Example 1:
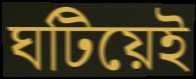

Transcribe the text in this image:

ঘটিয়েই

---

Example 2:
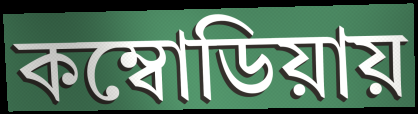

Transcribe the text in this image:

কম্বোডিয়ায়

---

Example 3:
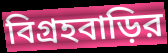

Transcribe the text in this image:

বিগ্রহবাড়ির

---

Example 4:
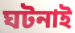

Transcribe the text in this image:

ঘটনাই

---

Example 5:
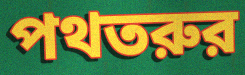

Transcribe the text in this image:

পথতরুর